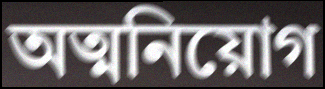
অত্মনিয়োগ